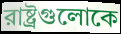
রাষ্ট্রগুলোকে